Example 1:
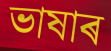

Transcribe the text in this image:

ভাষাৰ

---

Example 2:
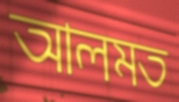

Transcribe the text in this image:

আলমত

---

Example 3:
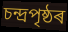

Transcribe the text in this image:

চন্দ্ৰপৃষ্ঠৰ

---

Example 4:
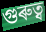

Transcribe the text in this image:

গুৰুত্ব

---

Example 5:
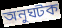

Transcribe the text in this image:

অনুঘটক